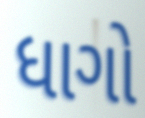
ધાગો